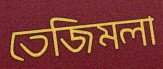
তেজিমলা